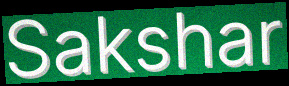
Sakshar